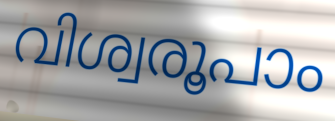
വിശ്വരൂപാം